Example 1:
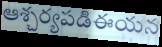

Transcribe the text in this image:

ఆశ్చర్యపడిఈయన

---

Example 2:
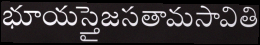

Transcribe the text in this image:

భూయస్తైజసతామసావితి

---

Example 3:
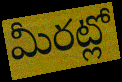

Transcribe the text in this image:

మీరట్లో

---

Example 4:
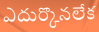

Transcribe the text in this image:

ఎదుర్కొనలేక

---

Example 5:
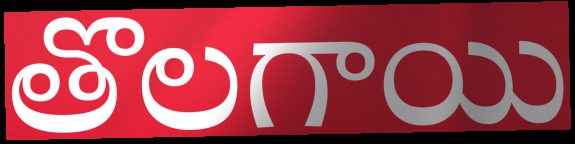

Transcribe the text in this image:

తొలగాయి